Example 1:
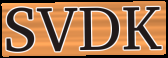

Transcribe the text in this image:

SVDK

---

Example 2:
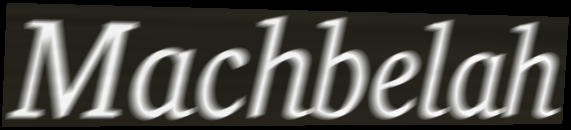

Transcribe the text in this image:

Machbelah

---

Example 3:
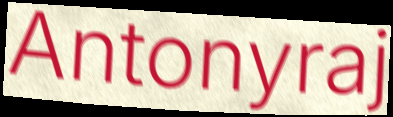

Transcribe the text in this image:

Antonyraj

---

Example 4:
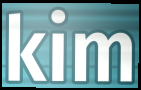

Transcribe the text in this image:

kim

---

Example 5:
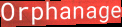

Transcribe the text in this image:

Orphanage